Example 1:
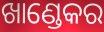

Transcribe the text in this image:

ଖାଣ୍ଡେକର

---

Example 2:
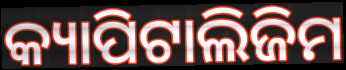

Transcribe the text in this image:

କ୍ୟାପିଟାଲିଜିମ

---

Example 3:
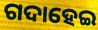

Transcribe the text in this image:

ଗଦାହେଇ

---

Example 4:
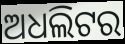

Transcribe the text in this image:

ଅଧଲିଟର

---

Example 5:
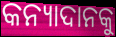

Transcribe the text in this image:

କନ୍ୟାଦାନକୁ